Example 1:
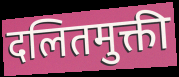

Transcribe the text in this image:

दलितमुक्ती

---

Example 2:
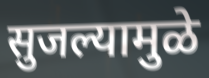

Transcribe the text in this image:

सुजल्यामुळे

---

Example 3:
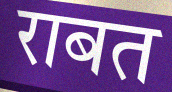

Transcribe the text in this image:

राबत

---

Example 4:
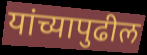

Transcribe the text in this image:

यांच्यापुढील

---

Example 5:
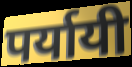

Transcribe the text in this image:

पर्यायी